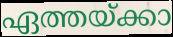
ഏത്തയ്ക്കാ